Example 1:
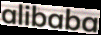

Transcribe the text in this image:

alibaba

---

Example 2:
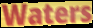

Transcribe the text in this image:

Waters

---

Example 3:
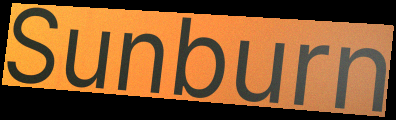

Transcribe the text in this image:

Sunburn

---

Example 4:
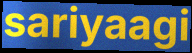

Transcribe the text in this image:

sariyaagi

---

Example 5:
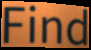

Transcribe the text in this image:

Find